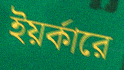
ইয়র্কারে